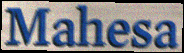
Mahesa